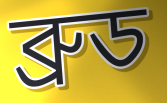
ব্রুড